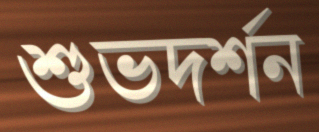
শুভদর্শন